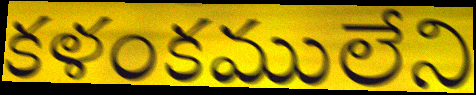
కళంకములేని